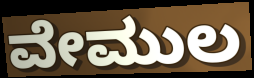
ವೇಮುಲ